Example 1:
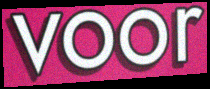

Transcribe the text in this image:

voor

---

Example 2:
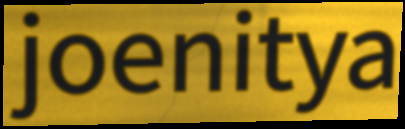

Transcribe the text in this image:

joenitya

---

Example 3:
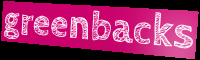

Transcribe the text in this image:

greenbacks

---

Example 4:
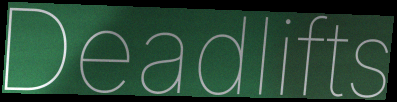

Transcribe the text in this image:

Deadlifts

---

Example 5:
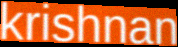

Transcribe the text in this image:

krishnan